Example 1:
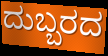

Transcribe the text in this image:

ದುಬ್ಬರದ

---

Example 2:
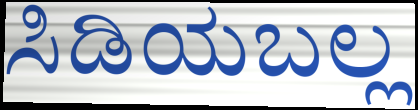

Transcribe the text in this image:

ಸಿಡಿಯಬಲ್ಲ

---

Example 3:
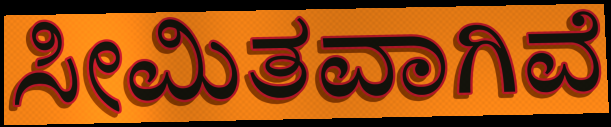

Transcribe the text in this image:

ಸೀಮಿತವಾಗಿವೆ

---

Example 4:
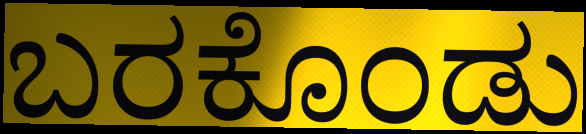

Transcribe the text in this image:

ಬರಕೊಂಡು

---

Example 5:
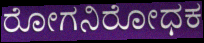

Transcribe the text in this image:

ರೋಗನಿರೋಧಕ